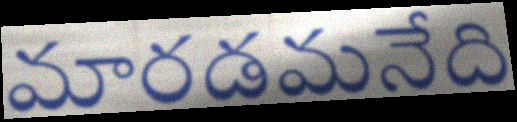
మారడమనేది